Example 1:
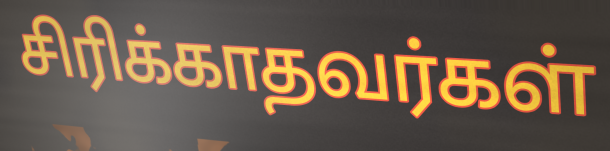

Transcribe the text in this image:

சிரிக்காதவர்கள்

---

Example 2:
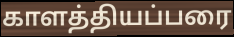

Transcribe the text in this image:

காளத்தியப்பரை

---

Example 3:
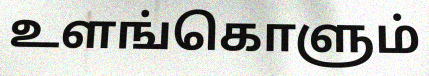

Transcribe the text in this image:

உளங்கொளும்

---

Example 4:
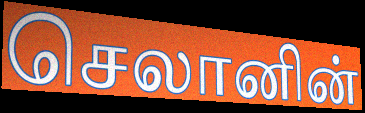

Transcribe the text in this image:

செலானின்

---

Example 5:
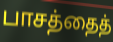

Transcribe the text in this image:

பாசத்தைத்